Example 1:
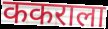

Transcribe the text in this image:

ककराला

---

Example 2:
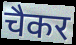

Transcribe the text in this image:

चैकर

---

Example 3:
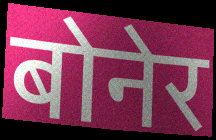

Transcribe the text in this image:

बोनेर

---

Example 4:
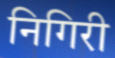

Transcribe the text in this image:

निगिरी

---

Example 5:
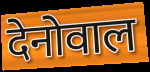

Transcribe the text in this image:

देनोवाल